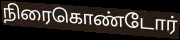
நிரைகொண்டோர்